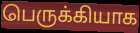
பெருக்கியாக